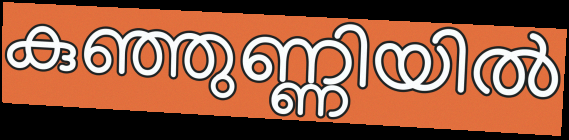
കുഞ്ഞുണ്ണിയിൽ